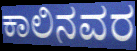
ಕಾಲಿನವರ